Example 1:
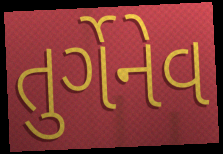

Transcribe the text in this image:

તુર્ગેનેવ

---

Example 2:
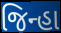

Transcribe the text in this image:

જિન્હા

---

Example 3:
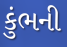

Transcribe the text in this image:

કુંભની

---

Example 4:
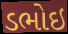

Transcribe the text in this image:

ડભોઇ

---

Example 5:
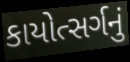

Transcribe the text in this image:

કાયોત્સર્ગનું